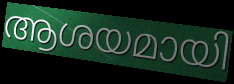
ആശയമായി